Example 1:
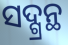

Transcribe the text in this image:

ସଦ୍ଗ୍ରନ୍ଥ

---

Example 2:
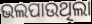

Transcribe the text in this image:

ଭଲପାଉଥିଲା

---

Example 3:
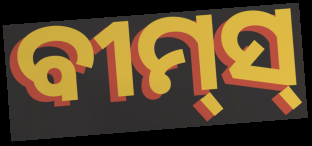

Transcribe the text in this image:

ବୀମ୍‌ସ୍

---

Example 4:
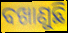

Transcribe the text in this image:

ବଖାଣୁଛି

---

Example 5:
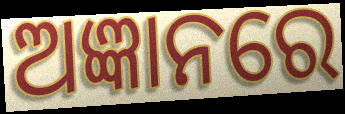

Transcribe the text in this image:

ଅଜ୍ଞାନରେ